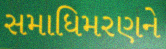
સમાધિમરણને